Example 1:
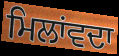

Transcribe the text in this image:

ਮਿਲਾਂਵਦਾ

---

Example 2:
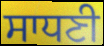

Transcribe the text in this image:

ਸਾਧਣੀ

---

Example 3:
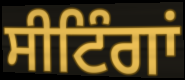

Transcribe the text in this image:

ਸੀਟਿੰਗਾਂ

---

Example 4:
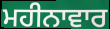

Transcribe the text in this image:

ਮਹੀਨਾਵਾਰ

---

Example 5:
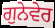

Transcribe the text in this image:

ਗੁਨੇਵੇਰ